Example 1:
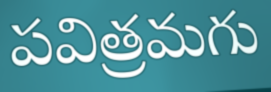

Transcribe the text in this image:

పవిత్రమగు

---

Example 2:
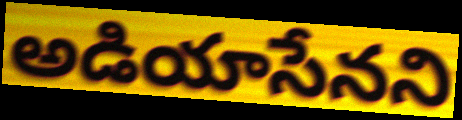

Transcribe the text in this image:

అడియాసేనని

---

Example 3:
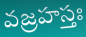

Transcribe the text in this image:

వజ్రహస్తః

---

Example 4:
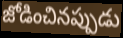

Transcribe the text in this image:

జోడించినప్పుడు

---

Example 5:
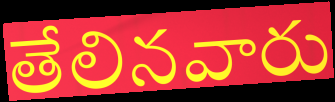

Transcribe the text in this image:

తేలినవారు